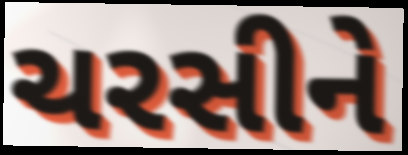
ચરસીને